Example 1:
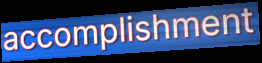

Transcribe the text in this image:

accomplishment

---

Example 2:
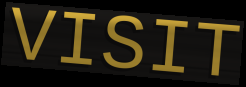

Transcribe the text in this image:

VISIT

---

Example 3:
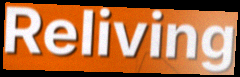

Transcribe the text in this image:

Reliving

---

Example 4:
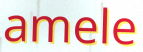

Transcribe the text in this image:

amele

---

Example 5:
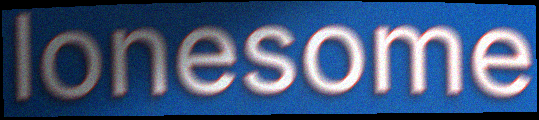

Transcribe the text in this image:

lonesome